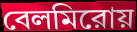
বেলমিরোয়